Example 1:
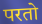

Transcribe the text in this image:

परतो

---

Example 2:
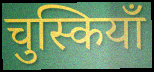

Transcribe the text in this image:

चुस्कियाँ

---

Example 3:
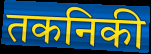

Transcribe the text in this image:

तकनिकी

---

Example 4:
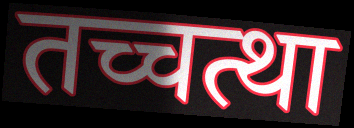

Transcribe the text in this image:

तच्चत्था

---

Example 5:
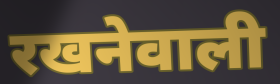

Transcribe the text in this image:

रखनेवाली